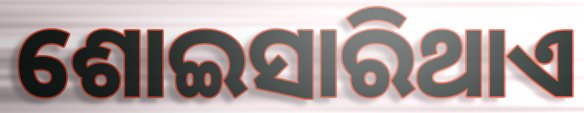
ଶୋଇସାରିଥାଏ